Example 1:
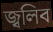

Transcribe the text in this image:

জ্বলিব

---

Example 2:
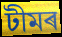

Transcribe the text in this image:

টীমৰ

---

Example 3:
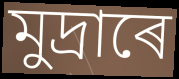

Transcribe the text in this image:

মুদ্ৰাৰে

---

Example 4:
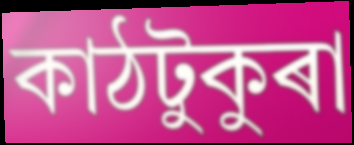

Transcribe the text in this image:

কাঠটুকুৰা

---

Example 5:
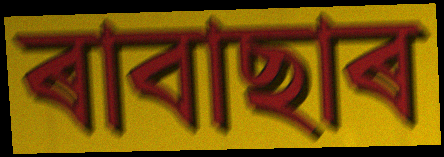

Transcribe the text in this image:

ৰাবাছাৰ